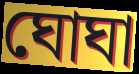
ঘোঘা